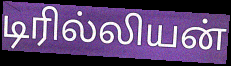
டிரில்லியன்